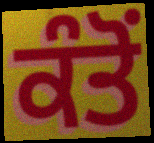
ਕੰਤੋਂ